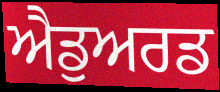
ਐਡੁਅਰਡ